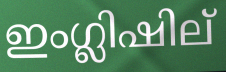
ഇംഗ്ലിഷില്